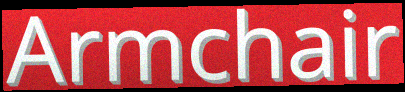
Armchair